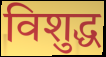
विशुद्ध